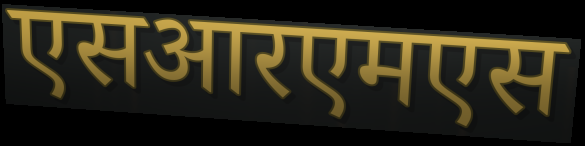
एसआरएमएस